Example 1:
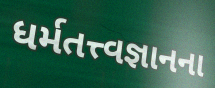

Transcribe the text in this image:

ધર્મતત્ત્વજ્ઞાનના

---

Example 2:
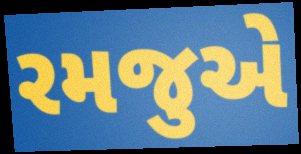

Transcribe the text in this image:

રમજુએ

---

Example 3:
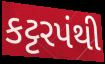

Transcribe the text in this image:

કટ્ટરપંથી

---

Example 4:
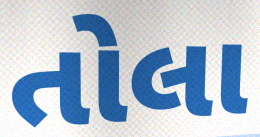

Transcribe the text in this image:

તોલા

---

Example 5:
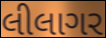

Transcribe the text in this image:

લીલાગર